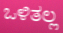
ಒಳಿತಲ್ಲ